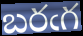
బరఁగ